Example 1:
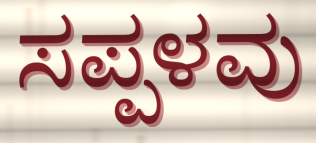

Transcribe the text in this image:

ಸಪ್ಪಳವು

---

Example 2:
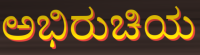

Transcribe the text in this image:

ಅಭಿರುಚಿಯ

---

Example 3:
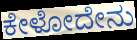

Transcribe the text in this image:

ಕೇಳೋದೇನು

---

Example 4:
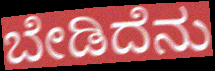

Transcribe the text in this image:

ಬೇಡಿದೆನು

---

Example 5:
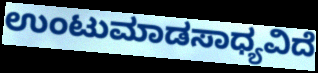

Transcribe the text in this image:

ಉಂಟುಮಾಡಸಾಧ್ಯವಿದೆ